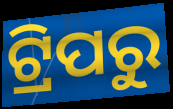
ଟ୍ରିପରୁ